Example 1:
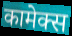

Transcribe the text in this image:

कामेक्स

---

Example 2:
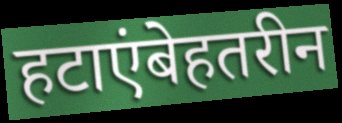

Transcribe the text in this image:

हटाएंबेहतरीन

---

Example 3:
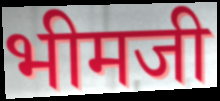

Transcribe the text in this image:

भीमजी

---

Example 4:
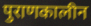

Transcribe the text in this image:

पुराणकालीन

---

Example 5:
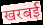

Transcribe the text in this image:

खरबई